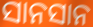
ସାନସାନ